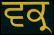
ਵਕ੍ਰ